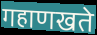
गहाणखते